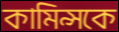
কামিন্সকে